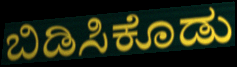
ಬಿಡಿಸಿಕೊಡು